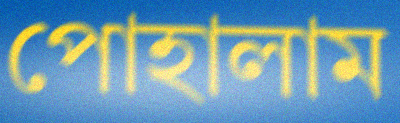
পোহালাম